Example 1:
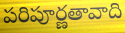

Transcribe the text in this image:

పరిపూర్ణతావాది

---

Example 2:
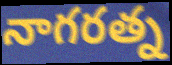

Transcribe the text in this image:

నాగరత్న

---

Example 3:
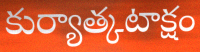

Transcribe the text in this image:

కుర్యాత్కటాక్షం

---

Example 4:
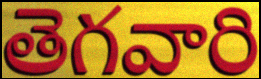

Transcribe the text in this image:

తెగవారి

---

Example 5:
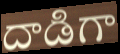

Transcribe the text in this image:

దాడిగా